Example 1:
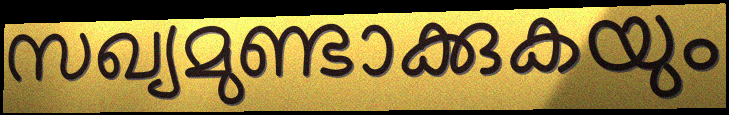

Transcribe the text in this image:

സഖ്യമുണ്ടാക്കുകയും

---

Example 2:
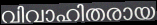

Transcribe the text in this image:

വിവാഹിതരായ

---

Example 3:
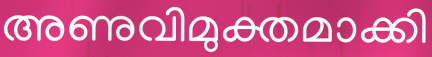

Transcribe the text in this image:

അണുവിമുക്തമാക്കി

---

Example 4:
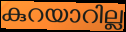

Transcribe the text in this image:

കുറയാറില്ല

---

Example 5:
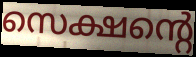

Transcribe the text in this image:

സെക്ഷന്റെ